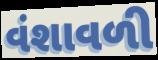
વંશાવળી